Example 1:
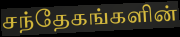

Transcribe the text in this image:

சந்தேகங்களின்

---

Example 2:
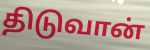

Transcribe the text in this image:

திடுவான்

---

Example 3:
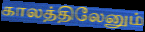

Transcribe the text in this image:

காலத்திலேனும்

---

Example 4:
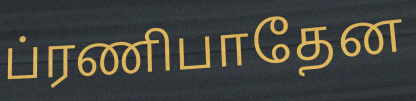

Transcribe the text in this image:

ப்ரணிபாதேன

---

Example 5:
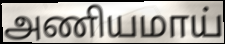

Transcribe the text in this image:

அணியமாய்